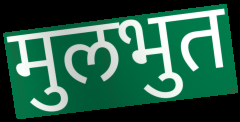
मुलभुत